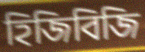
হিজিবিজি